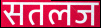
सतलज